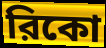
রিকো